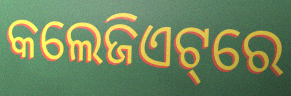
କଲେଜିଏଟ୍‌ରେ